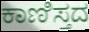
ಕಾಣಿಸ್ತದ